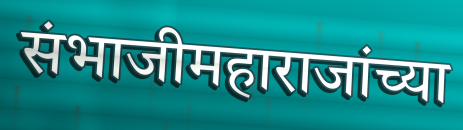
संभाजीमहाराजांच्या